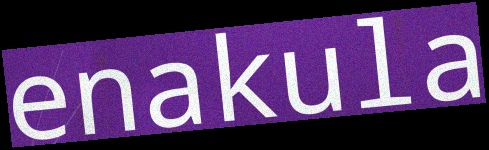
enakula